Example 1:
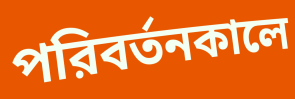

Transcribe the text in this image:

পরিবর্তনকালে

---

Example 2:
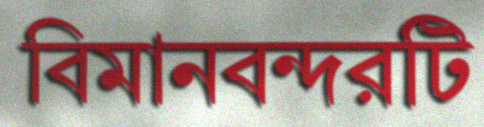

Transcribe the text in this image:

বিমানবন্দরটি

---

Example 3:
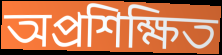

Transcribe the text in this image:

অপ্রশিক্ষিত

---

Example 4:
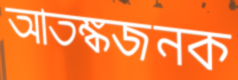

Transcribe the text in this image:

আতঙ্কজনক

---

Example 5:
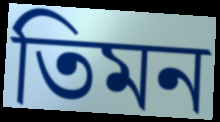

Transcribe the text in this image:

তিমন